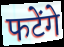
फटेंगे